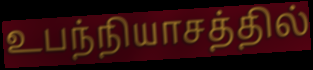
உபந்நியாசத்தில்